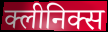
क्लीनिक्स